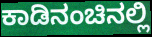
ಕಾಡಿನಂಚಿನಲ್ಲಿ